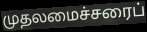
முதலமைச்சரைப்